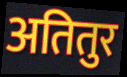
अतितुर